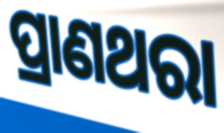
ପ୍ରାଣଥରା